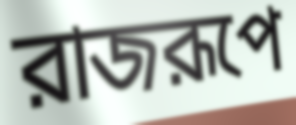
রাজরূপে